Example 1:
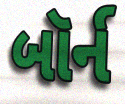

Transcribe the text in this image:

બૉર્ન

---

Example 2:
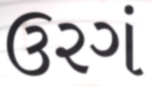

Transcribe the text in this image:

ઉરગં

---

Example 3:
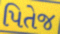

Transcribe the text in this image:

પિતેજ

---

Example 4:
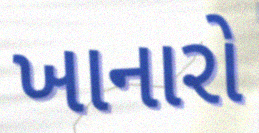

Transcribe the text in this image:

ખાનારો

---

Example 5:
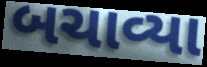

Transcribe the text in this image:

બચાવ્યા